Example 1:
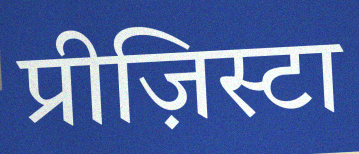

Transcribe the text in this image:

प्रीज़िस्टा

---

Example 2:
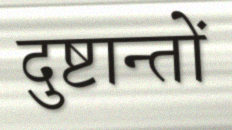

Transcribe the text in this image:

दुष्टान्तों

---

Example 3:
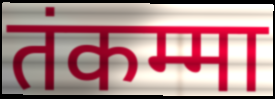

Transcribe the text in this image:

तंकम्मा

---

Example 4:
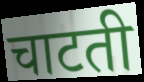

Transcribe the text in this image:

चाटती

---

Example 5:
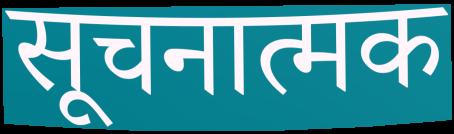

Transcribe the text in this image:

सूचनात्मक